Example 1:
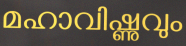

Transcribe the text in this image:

മഹാവിഷ്ണുവും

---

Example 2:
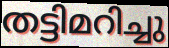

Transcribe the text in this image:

തട്ടിമറിച്ചു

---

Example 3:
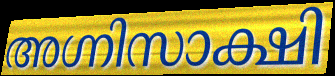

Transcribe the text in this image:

അഗ്നിസാക്ഷി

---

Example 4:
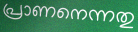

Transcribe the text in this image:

പ്രാണനെന്നതു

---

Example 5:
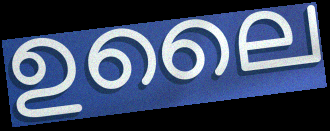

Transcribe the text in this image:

ഉലൈ